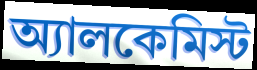
অ্যালকেমিস্ট